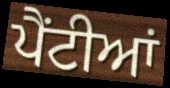
ਪੈਂਟੀਆਂ